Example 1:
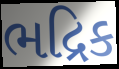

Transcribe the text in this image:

ભદ્રિક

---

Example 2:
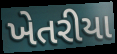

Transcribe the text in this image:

ખેતરીયા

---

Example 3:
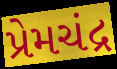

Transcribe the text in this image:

પ્રેમચંદ્ર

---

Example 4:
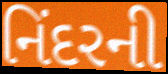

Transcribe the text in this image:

નિંદરની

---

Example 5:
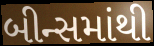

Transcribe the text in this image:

બીન્સમાંથી